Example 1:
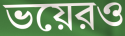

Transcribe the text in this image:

ভয়েরও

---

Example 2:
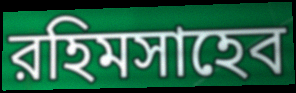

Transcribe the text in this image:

রহিমসাহেব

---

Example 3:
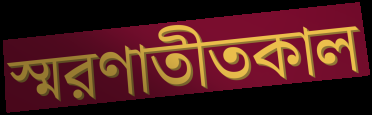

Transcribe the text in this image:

স্মরণাতীতকাল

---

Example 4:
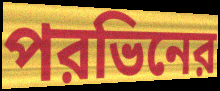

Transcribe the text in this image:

পরভিনের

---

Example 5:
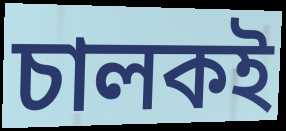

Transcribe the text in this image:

চালকই